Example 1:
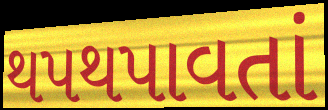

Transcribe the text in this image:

થપથપાવતાં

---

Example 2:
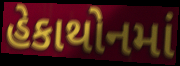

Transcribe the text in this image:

હેકાથોનમાં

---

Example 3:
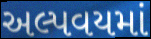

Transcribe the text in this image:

અલ્પવયમાં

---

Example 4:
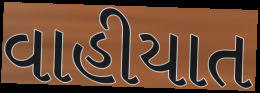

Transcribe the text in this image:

વાહીયાત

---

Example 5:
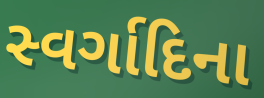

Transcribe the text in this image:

સ્વર્ગાદિના